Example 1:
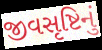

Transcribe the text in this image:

જીવસૃષ્ટિનું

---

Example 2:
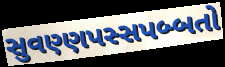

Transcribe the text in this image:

સુવણ્ણપસ્સપબ્બતો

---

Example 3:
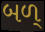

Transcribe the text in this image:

બળ્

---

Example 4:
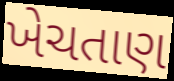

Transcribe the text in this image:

ખેચતાણ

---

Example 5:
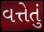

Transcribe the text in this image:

વત્તેતું